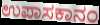
ಉಪಾಸಕಾನಂ